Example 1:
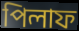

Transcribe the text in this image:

পিলাফ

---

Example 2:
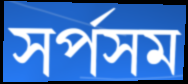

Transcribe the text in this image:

সর্পসম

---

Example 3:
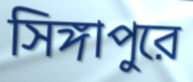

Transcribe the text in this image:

সিঙ্গাপুরে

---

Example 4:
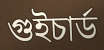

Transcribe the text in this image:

গুইচার্ড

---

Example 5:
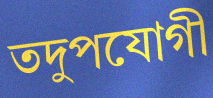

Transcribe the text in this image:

তদুপযোগী